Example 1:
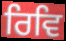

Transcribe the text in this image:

ਰਿਵਿ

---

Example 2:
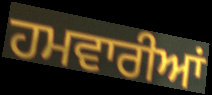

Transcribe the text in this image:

ਹਮਵਾਰੀਆਂ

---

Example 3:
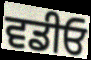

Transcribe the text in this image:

ਵਡੀਓ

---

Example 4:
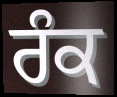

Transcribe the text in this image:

ਰੰਕ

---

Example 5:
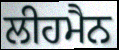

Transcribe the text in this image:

ਲੀਹਮੈਨ